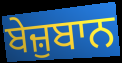
ਬੇਜ਼ੁਬਾਨ